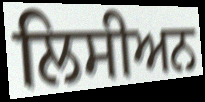
ਲਿਸੀਅਨ